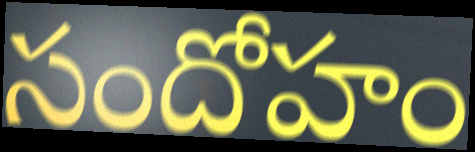
సందోహం